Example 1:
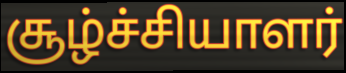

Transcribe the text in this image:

சூழ்ச்சியாளர்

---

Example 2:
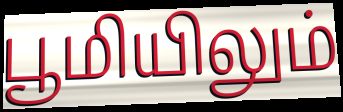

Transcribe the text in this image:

பூமியிலும்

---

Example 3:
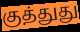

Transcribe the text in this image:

குத்துது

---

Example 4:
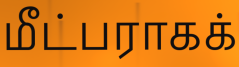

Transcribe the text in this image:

மீட்பராகக்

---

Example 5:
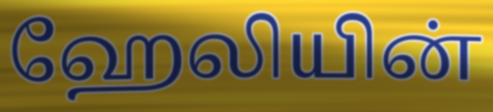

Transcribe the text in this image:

ஹேலியின்